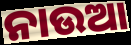
ନାଉଆ